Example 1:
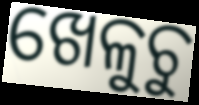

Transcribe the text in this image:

ଖେଳୁଚୁ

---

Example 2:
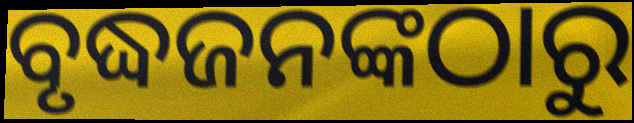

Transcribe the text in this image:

ବୃଦ୍ଧଜନଙ୍କଠାରୁ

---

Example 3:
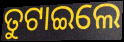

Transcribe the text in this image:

ତୁଟାଇଲେ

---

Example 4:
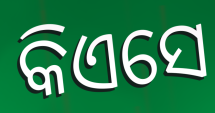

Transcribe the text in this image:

କିଏସେ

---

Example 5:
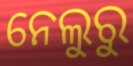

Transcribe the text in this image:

ନେଲୁରୁ